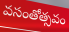
వసంతోత్సవం